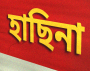
হাছিনা